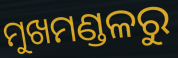
ମୁଖମଣ୍ଡଳରୁ